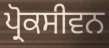
ਪ੍ਰੋਕਸੀਵਨ